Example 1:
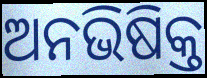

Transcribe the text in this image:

ଅନଭିଷିକ୍ତ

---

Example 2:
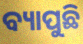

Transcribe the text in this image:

ବ୍ୟାପୁଛି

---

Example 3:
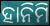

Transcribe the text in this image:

ହାନିମି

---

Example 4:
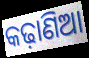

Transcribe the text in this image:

କଢ଼ାଣିଆ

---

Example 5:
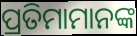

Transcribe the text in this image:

ପ୍ରତିମାମାନଙ୍କ